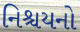
નિશ્ચયનો